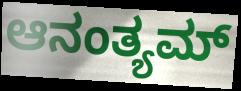
ಆನಂತ್ಯಮ್